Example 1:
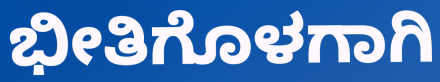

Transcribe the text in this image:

ಭೀತಿಗೊಳಗಾಗಿ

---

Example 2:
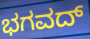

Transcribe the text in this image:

ಭಗವದ್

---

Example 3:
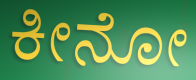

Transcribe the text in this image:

ಕೀನೋ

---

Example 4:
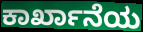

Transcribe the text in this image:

ಕಾರ್ಖಾನೆಯ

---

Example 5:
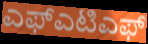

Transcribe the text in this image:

ಎಫ್ಎಟಿಎಫ್